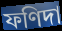
ফণিদা